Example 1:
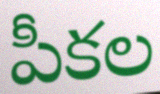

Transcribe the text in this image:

పీకల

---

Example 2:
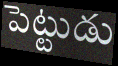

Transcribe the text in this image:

పెట్టుడు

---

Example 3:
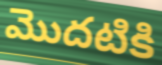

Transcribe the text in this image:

మొదటికి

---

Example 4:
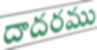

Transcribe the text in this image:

దాదరము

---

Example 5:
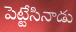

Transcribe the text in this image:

పెట్టేసినాడు